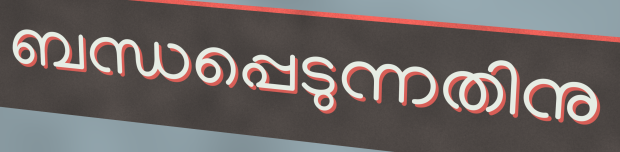
ബന്ധപ്പെടുന്നതിനു